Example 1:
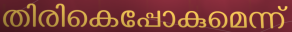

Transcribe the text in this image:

തിരികെപ്പോകുമെന്ന്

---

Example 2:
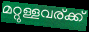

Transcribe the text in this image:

മറ്റുള്ളവര്ക്ക്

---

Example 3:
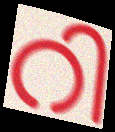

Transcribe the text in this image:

റി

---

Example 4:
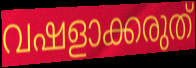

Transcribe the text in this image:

വഷളാക്കരുത്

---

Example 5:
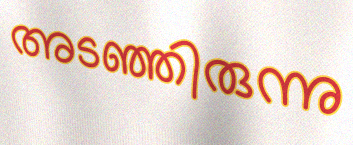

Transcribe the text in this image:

അടഞ്ഞിരുന്നു